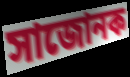
সাজোনক